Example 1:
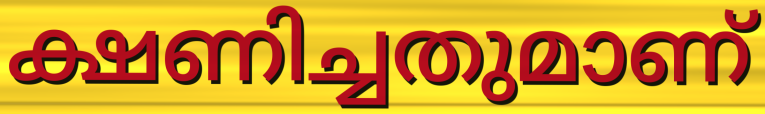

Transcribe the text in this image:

ക്ഷണിച്ചതുമാണ്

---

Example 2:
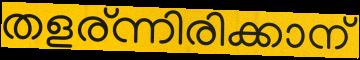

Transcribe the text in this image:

തളര്ന്നിരിക്കാന്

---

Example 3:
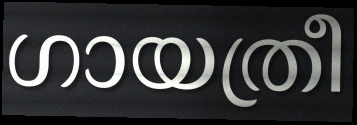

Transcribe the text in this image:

ഗായത്രീ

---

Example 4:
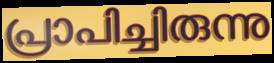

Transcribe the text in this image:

പ്രാപിച്ചിരുന്നു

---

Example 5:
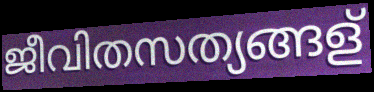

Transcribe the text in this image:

ജീവിതസത്യങ്ങള്